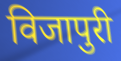
विजापुरी